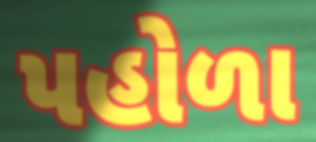
પહોળા